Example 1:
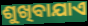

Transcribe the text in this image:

ଶୁଖିବାଯାଏ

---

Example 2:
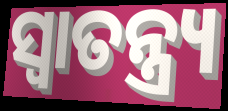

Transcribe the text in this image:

ସ୍ଵାତନ୍ତ୍ର୍ୟ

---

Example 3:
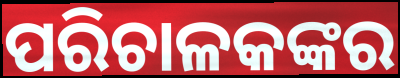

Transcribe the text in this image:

ପରିଚାଳକଙ୍କର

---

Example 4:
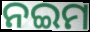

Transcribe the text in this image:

ନଇମ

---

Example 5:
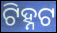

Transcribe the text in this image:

ଟିହ୍ନଟ